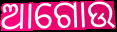
ଆଗୋଉ